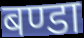
बण्डा